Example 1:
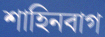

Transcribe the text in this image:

শাহিনবাগ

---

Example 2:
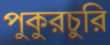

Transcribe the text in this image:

পুকুরচুরি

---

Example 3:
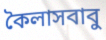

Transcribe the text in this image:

কৈলাসবাবু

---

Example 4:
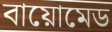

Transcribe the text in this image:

বায়োমেড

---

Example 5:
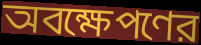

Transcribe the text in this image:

অবক্ষেপণের